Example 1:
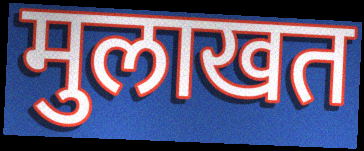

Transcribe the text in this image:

मुलाखत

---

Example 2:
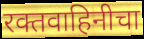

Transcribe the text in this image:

रक्तवाहिनीचा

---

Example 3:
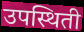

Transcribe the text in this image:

उपस्थिती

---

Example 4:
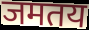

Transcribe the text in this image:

जमतय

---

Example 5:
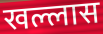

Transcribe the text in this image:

खल्लास